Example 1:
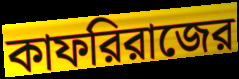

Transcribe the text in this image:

কাফরিরাজের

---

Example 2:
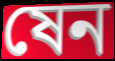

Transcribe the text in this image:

ষেন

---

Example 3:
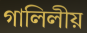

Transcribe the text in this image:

গালিলীয়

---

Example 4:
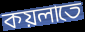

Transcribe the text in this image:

কয়লাতে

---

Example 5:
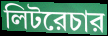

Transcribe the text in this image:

লিটরেচার